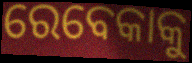
ରେବେକାକୁ